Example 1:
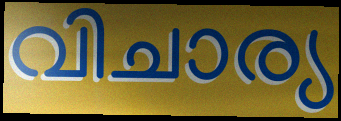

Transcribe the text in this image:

വിചാര്യ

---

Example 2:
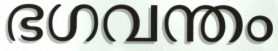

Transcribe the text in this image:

ഭഗവന്തം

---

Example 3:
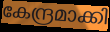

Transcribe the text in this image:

കേന്ദ്രമാക്കി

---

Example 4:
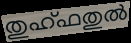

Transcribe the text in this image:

തുഹ്ഫതുൽ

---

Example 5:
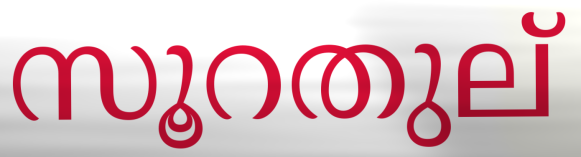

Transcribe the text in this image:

സൂറതുല്